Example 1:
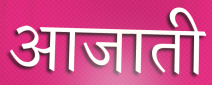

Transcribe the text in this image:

आजाती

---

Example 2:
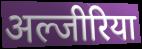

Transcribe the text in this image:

अल्जीरिया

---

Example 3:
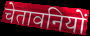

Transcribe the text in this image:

चेतावनियों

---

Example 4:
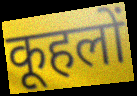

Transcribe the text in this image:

कूहलों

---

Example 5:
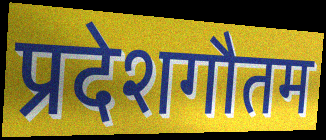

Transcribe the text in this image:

प्रदेशगौतम